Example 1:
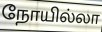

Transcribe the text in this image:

நோயில்லா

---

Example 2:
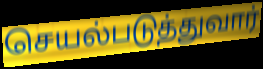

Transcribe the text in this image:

செயல்படுத்துவார்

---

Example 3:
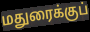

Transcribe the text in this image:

மதுரைக்குப்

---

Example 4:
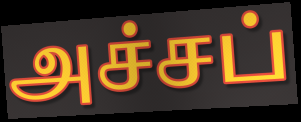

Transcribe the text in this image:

அச்சப்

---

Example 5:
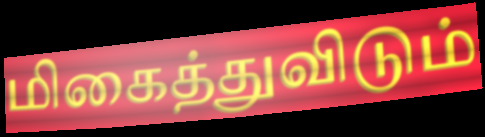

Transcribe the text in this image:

மிகைத்துவிடும்